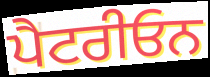
ਪੈਟਰੀਓਨ